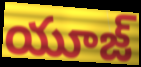
యూజ్